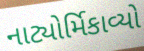
નાટ્યોર્મિકાવ્યો